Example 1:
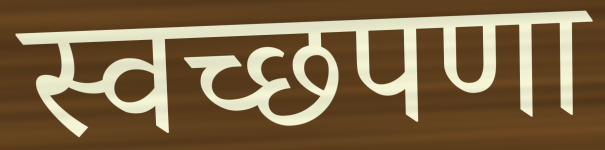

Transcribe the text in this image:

स्वच्छपणा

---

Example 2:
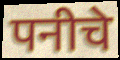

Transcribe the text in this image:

पनीचे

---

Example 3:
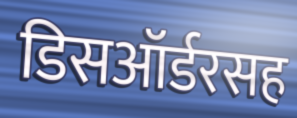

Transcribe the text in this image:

डिसऑर्डरसह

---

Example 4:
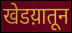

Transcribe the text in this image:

खेडय़ातून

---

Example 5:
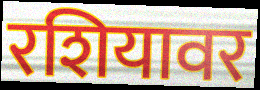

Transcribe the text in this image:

रशियावर